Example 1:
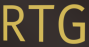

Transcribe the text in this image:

RTG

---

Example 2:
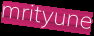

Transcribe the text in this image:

mrityune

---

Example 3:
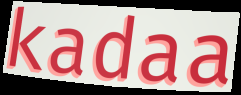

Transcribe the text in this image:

kadaa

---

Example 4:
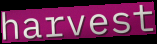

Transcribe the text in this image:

harvest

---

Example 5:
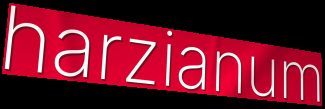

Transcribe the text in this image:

harzianum